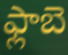
ఫ్లాబె